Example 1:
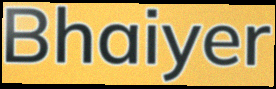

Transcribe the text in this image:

Bhaiyer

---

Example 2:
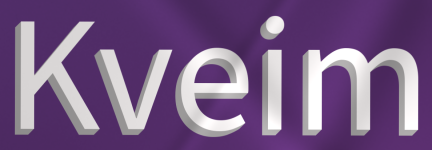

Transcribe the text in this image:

Kveim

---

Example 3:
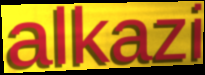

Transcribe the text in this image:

alkazi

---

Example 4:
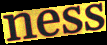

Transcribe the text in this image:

ness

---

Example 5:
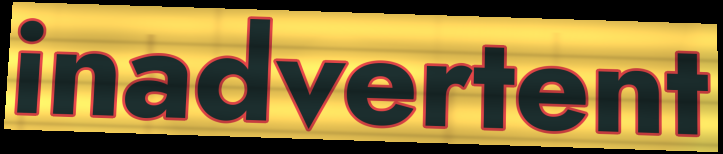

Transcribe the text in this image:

inadvertent